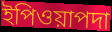
ইপিওয়াপদা